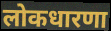
लोकधारणा